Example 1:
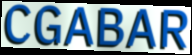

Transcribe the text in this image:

CGABAR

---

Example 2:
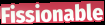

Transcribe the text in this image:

Fissionable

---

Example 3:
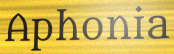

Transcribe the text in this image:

Aphonia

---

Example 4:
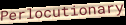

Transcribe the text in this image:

Perlocutionary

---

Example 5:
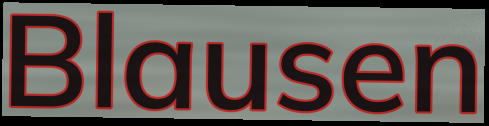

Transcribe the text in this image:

Blausen